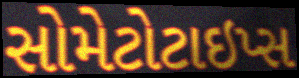
સોમેટોટાઇપ્સ